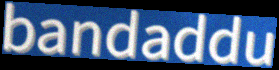
bandaddu